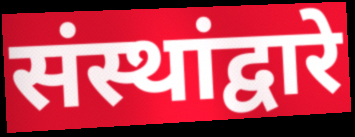
संस्थांद्वारे